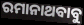
ରମାନାଥବାବୁ